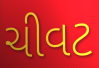
ચીવટ